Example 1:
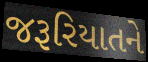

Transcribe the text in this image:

જરૂરિયાતને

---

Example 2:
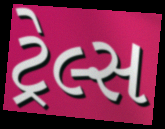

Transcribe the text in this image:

ટ્રેલ્સ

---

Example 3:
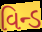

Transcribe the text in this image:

વિન્ડ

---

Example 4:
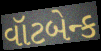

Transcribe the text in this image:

વૉટબેન્ક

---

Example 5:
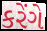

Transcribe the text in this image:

કરેંગે